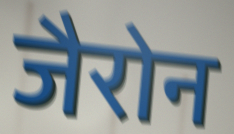
जैरोन